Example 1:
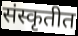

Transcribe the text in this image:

संस्कृतीत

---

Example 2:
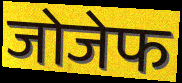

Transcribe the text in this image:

जोजेफ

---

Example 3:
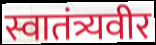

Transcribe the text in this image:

स्वातंत्र्यवीर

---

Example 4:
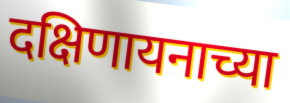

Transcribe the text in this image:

दक्षिणायनाच्या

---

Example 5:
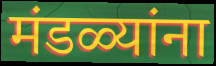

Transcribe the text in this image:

मंडळ्यांना